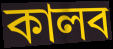
কালব